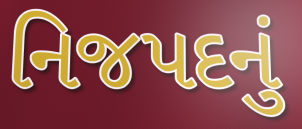
નિજપદનું